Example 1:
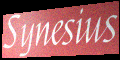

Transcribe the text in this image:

Synesius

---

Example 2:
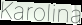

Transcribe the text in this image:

Karolina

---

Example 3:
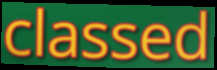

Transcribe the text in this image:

classed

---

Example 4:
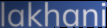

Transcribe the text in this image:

lakhani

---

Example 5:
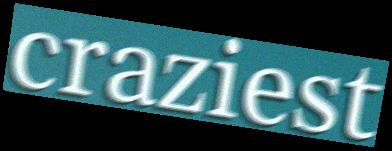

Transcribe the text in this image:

craziest